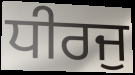
ਧੀਰਜੁ